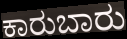
ಕಾರುಬಾರು